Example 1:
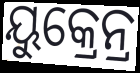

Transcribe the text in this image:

ୟୁକ୍ରେନ୍ର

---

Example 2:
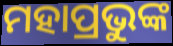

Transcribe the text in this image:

ମହାପ୍ରଭୁଙ୍କ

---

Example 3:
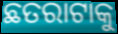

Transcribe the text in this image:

ଛତରାଟାକୁ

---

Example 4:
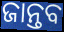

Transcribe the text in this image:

ଜାନ୍ତବ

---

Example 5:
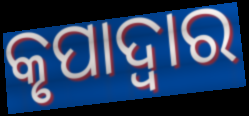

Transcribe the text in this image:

କୃପାଦ୍ଵାର